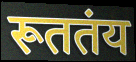
रूततंय